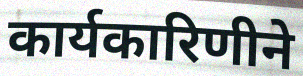
कार्यकारिणीने